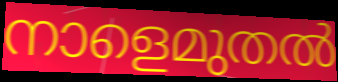
നാളെമുതൽ